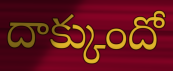
దాక్కుందో